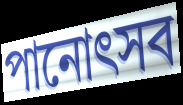
পানোৎসব